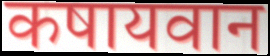
कषायवान